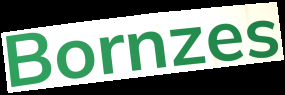
Bornzes